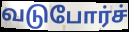
வடுபோர்ச்